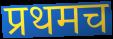
प्रथमच